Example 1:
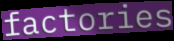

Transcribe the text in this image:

factories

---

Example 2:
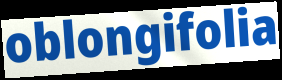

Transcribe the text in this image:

oblongifolia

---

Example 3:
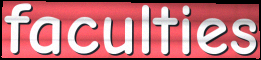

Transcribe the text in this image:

faculties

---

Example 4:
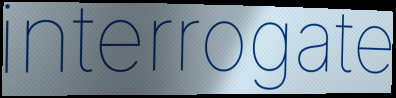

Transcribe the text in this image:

interrogate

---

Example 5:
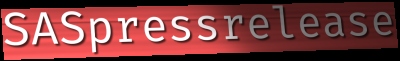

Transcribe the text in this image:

SASpressrelease